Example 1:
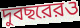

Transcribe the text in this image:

দুবছরেরও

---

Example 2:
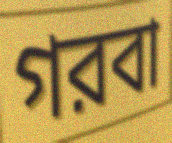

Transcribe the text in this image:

গরবা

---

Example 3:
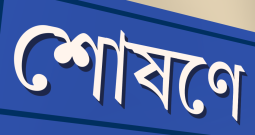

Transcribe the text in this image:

শোষণে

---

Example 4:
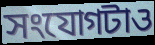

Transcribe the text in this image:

সংযোগটাও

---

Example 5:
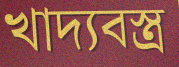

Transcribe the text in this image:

খাদ্যবস্ত্র